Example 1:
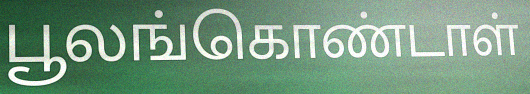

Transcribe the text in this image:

பூலங்கொண்டாள்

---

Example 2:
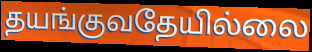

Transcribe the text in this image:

தயங்குவதேயில்லை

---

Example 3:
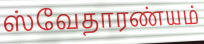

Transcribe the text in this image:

ஸ்வேதாரண்யம்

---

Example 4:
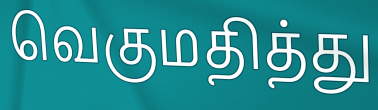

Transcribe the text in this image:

வெகுமதித்து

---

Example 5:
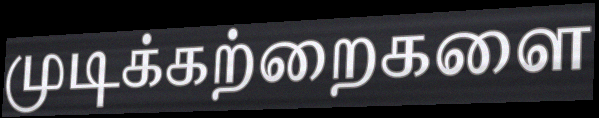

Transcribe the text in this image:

முடிக்கற்றைகளை